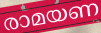
രാമയണ